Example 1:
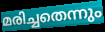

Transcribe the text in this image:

മരിച്ചതെന്നും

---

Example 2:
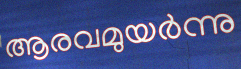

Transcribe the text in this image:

ആരവമുയർന്നു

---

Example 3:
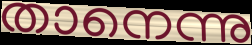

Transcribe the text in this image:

താനെന്നു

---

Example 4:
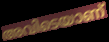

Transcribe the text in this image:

അവിടെയാണ്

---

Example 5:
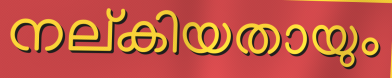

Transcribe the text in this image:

നല്കിയതായും